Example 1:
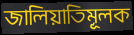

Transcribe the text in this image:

জালিয়াতিমূলক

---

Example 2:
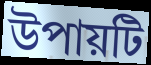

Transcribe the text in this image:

উপায়টি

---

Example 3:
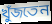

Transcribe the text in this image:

খুঁজতেন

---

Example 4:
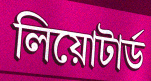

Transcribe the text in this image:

লিয়োটার্ড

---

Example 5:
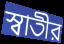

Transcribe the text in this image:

স্বাতীর